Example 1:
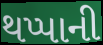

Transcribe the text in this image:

થપ્પાની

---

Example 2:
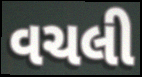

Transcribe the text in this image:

વચલી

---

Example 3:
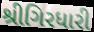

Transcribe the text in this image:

શ્રીગિરધારી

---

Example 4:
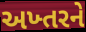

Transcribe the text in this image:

અખ્તરને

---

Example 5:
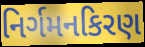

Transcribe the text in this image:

નિર્ગમનકિરણ